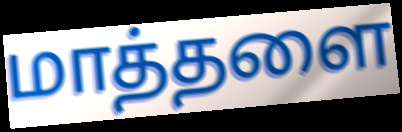
மாத்தளை